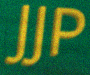
JJP